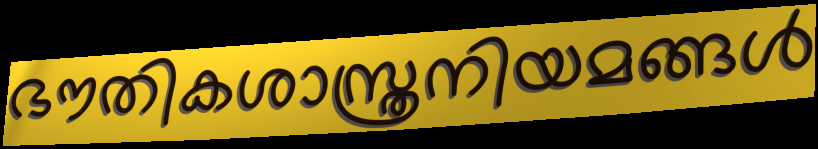
ഭൗതികശാസ്ത്രനിയമങ്ങൾ